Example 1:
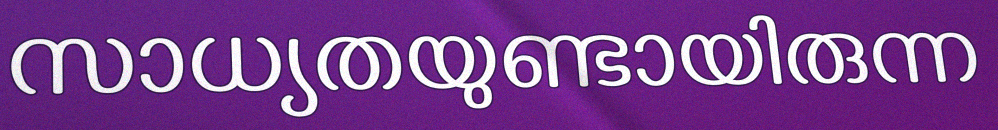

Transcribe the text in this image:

സാധ്യതയുണ്ടായിരുന്ന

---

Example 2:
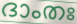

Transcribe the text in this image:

ദാംതഃ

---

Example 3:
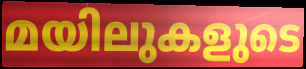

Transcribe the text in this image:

മയിലുകളുടെ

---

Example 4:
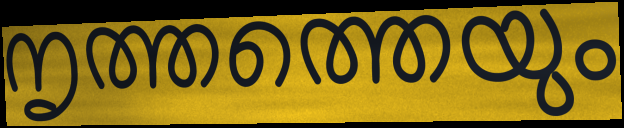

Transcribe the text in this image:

നൃത്തത്തെയും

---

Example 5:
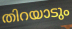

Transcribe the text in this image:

തിറയാടും